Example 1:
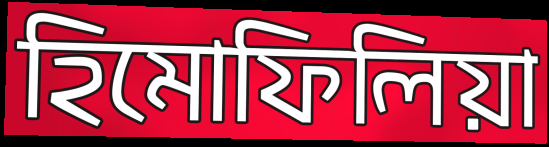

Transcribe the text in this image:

হিমোফিলিয়া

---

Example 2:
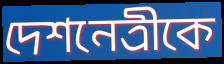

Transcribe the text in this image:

দেশনেত্রীকে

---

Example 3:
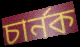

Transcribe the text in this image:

চার্নক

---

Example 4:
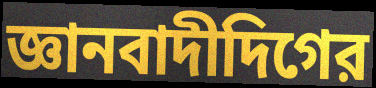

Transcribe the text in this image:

জ্ঞানবাদীদিগের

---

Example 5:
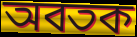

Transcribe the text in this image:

অবতক